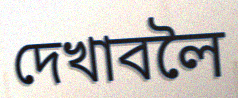
দেখাবলৈ